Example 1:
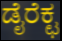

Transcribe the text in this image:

ಡೈರೆಕ್ಟ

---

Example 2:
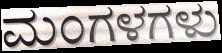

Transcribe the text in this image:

ಮಂಗಳಗಳು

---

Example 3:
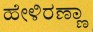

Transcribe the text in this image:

ಹೇಳಿರಣ್ಣಾ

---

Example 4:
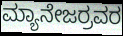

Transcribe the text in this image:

ಮ್ಯಾನೇಜರ್ರವರ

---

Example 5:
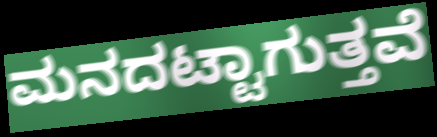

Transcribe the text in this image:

ಮನದಟ್ಟಾಗುತ್ತವೆ